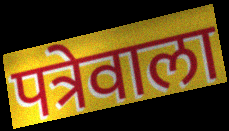
पत्रेवाला